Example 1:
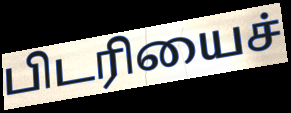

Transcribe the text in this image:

பிடரியைச்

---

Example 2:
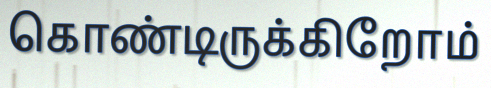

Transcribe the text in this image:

கொண்டிருக்கிறோம்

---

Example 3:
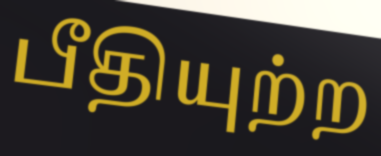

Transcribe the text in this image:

பீதியுற்ற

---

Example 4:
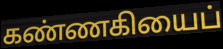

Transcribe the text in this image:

கண்ணகியைப்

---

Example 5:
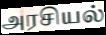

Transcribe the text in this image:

அரசியல்